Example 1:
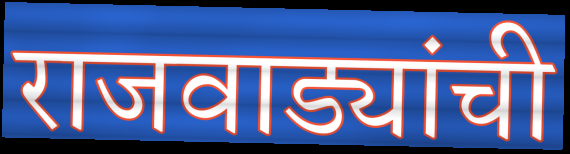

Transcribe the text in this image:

राजवाड्यांची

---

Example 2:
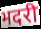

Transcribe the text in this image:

भदरी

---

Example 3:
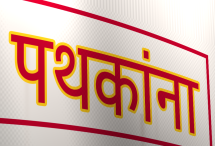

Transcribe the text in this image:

पथकांना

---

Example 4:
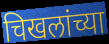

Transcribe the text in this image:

चिखलांच्या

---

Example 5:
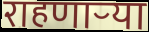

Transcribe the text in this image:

राहणाऱ्या